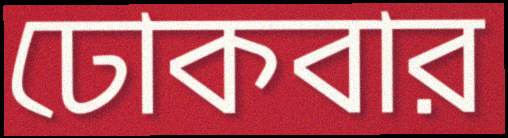
ঢোকবার